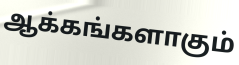
ஆக்கங்களாகும்